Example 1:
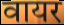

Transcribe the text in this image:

वायर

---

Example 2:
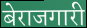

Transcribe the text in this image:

बेराजगारी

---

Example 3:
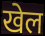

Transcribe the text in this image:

खेल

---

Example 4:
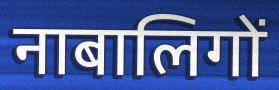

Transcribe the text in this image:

नाबालिगों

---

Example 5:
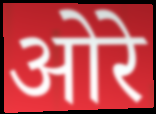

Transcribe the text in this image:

ओरे